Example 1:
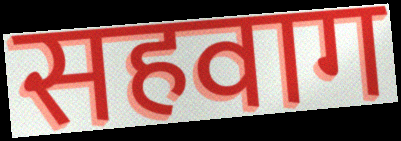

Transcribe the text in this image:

सहवाग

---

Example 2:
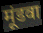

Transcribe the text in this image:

मूंडवा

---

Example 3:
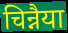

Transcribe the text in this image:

चिन्नैया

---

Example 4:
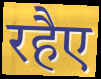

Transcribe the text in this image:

रहैए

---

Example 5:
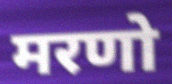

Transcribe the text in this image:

मरणो